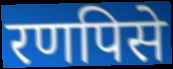
रणपिसे